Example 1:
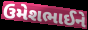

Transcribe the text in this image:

ઉમેશભાઈને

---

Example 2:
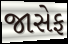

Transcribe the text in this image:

જાસેફ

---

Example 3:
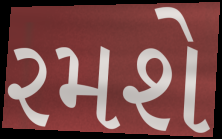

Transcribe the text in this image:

રમશે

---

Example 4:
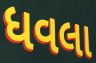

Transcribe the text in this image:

ધવલા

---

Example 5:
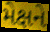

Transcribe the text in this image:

મેક્ષને